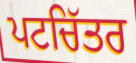
ਪਟਚਿੱਤਰ